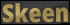
Skeen